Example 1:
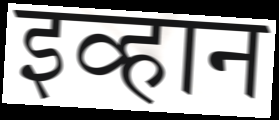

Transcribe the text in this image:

इव्हान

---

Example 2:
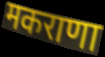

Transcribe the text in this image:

मकराणा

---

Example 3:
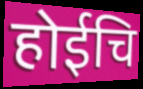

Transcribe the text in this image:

होईचि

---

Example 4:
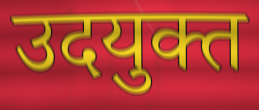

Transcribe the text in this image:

उदयुक्त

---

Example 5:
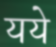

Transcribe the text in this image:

यये